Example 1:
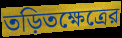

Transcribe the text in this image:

তড়িতক্ষেত্রের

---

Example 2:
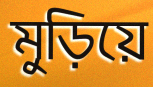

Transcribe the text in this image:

মুড়িয়ে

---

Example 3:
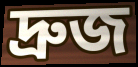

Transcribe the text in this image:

দ্রুজ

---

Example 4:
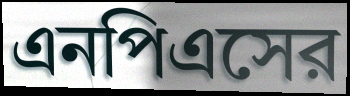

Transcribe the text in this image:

এনপিএসের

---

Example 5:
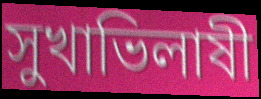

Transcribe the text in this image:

সুখাভিলাষী